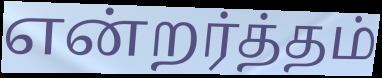
என்றர்த்தம்